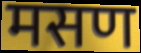
मसण